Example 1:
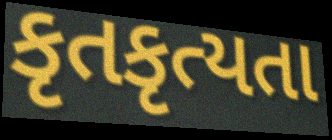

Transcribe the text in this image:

કૃતકૃત્યતા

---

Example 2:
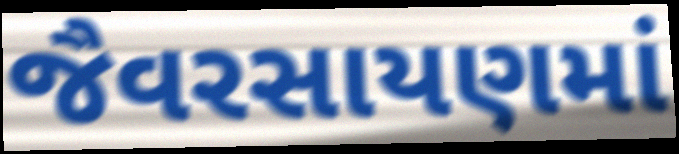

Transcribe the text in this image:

જૈવરસાયણમાં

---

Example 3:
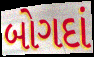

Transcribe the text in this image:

બોગદાં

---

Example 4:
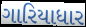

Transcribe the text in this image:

ગારિયાધાર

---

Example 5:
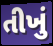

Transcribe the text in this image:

તીખું